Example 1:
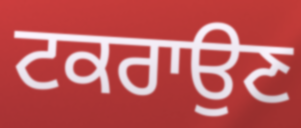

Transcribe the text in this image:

ਟਕਰਾਉਣ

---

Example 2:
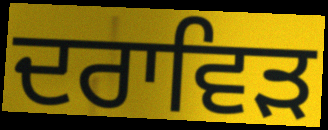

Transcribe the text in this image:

ਦਰਾਵਿੜ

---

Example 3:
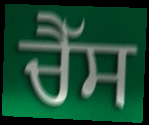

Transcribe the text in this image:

ਚੈੱਸ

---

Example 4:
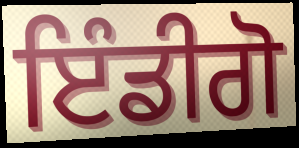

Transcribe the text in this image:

ਇੰਡੀਗੋ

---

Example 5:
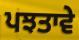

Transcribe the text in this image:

ਪਝਤਾਵੇ